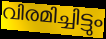
വിരമിച്ചിട്ടും